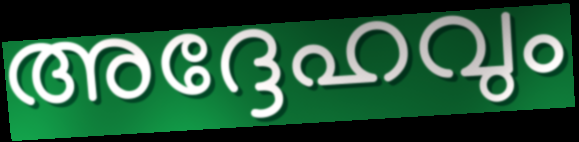
അദ്ദേഹവും